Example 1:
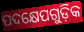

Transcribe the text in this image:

ପଦକ୍ଷେପଗୁଡ଼ିକ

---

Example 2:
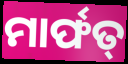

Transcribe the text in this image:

ମାର୍ଫତ୍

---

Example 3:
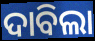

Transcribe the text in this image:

ଦାବିଲା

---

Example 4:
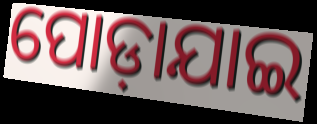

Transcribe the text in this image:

ପୋଡ଼ାଯାଇ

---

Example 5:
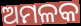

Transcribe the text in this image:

ଅମଳକ